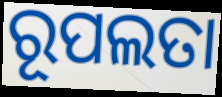
ରୂପଲତା